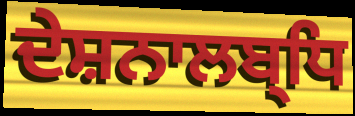
ਦੇਸ਼ਨਾਲਬ੍ਧਿ